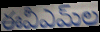
ఈవీఎమ్‌ల